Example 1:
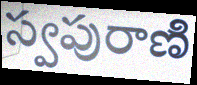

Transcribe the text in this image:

స్వపురాణి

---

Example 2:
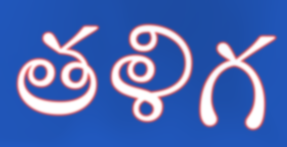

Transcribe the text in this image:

తళిగ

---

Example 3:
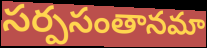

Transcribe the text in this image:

సర్పసంతానమా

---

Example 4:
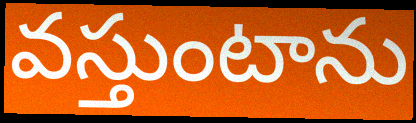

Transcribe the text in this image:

వస్తుంటాను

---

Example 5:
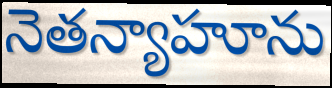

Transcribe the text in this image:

నెతన్యాహూను